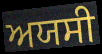
ਅਯਸੀ